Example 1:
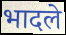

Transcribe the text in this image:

भादले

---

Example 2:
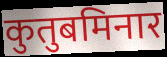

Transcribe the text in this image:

कुतुबमिनार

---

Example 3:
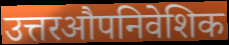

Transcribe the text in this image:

उत्तरऔपनिवेशिक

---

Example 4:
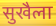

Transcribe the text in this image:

सुखैला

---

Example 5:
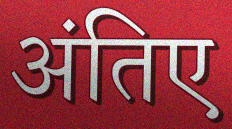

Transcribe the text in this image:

अंतिए